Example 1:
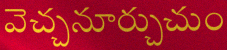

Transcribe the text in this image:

వెచ్చనూర్చుచుం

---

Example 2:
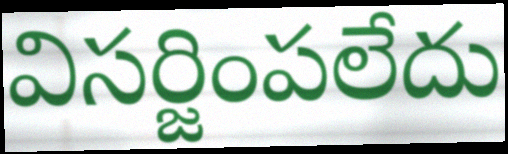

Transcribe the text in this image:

విసర్జింపలేదు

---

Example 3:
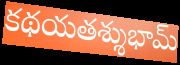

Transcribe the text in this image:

కథయతశ్శుభామ్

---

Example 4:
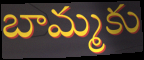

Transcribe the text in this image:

బామ్మకు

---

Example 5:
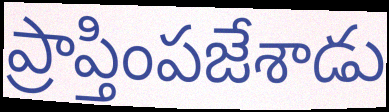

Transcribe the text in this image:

ప్రాప్తింపజేశాడు